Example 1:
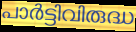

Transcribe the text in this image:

പാർട്ടിവിരുദ്ധ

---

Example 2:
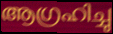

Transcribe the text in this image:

ആഗ്രഹിച്ചു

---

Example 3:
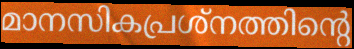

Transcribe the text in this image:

മാനസികപ്രശ്നത്തിന്റെ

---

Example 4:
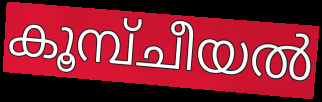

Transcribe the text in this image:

കൂമ്പ്ചീയൽ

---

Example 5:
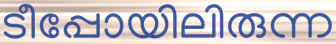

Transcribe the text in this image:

ടീപ്പോയിലിരുന്ന